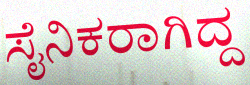
ಸೈನಿಕರಾಗಿದ್ದ